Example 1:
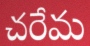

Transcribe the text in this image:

చరేమ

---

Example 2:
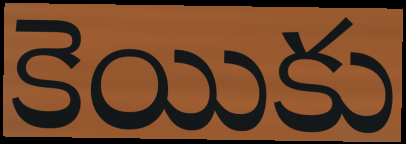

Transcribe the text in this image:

కెయికు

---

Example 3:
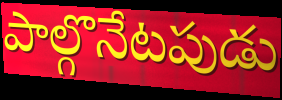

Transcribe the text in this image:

పాల్గొనేటపుడు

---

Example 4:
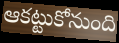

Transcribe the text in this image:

ఆకట్టుకోనుంది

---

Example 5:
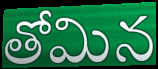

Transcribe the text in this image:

తోమిన